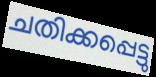
ചതിക്കപ്പെട്ടു